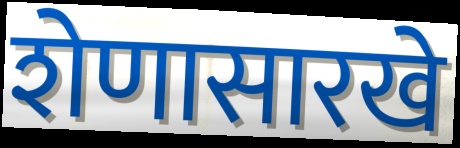
शेणासारखे